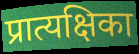
प्रात्यक्षिका